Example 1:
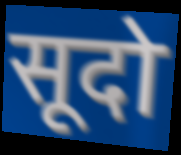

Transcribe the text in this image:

सूदो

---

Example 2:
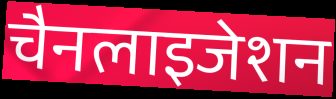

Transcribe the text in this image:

चैनलाइजेशन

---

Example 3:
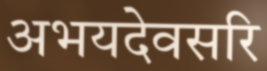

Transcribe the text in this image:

अभयदेवसरि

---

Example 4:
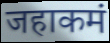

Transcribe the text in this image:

जहाकमं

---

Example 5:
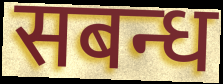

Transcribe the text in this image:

सबन्ध